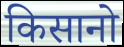
किसानो